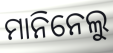
ମାନିନେଲୁ